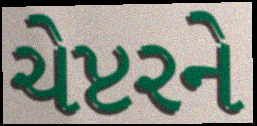
ચેપ્ટરને